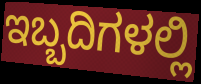
ಇಬ್ಬದಿಗಳಲ್ಲಿ